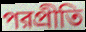
পরপ্রীতি